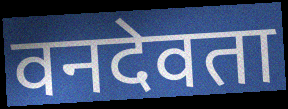
वनदेवता